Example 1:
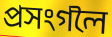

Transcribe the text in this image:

প্ৰসংগলৈ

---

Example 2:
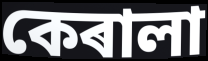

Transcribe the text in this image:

কেৰালা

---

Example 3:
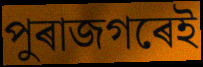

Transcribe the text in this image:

পুৰাজগৰেই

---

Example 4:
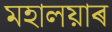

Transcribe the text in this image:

মহালয়াৰ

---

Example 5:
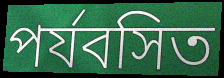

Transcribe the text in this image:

পৰ্যবসিত